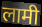
लामी